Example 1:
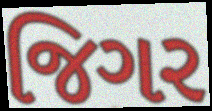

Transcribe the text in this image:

જિગર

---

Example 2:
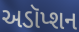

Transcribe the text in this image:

અડૉપ્શન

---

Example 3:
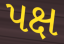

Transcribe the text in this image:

પક્ષ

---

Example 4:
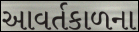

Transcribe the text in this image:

આવર્તકાળના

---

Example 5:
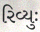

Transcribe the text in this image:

રિવ્યુઃ